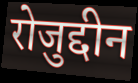
रोजुद्दीन